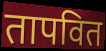
तापवित